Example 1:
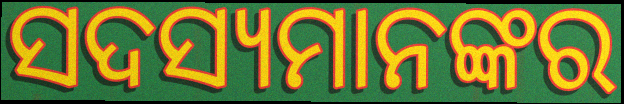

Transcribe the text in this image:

ସଦସ୍ୟମାନଙ୍କର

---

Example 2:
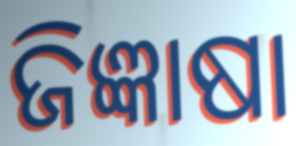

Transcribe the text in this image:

ଜିଜ୍ଞାଷା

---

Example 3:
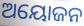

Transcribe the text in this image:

ଅୟୋଜନ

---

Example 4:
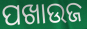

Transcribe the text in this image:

ପଖାଉଜ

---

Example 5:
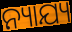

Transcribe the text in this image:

ନ୍ୟାଯ୍ୟ